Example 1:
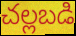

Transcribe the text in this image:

చల్లబడి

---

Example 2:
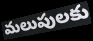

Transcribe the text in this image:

మలుపులకు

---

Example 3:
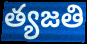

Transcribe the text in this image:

త్యజతి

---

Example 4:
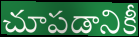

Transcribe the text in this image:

చూపడానికీ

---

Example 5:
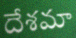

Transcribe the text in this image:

దేశమా